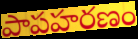
పాపహరణం